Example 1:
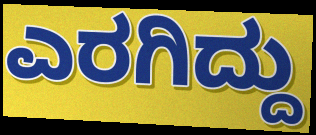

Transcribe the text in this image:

ಎರಗಿದ್ದು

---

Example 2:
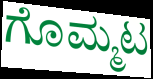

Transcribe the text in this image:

ಗೊಮ್ಮಟ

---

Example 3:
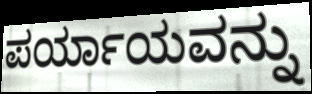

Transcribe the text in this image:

ಪರ್ಯಾಯವನ್ನು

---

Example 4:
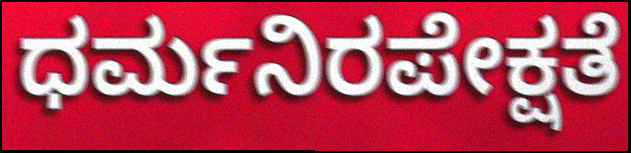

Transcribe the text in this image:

ಧರ್ಮನಿರಪೇಕ್ಷತೆ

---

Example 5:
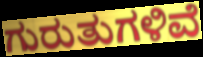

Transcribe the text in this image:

ಗುರುತುಗಳಿವೆ